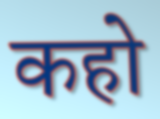
कहो